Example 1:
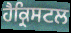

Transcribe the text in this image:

ਹੈਕ੍ਰਿਸਟਲ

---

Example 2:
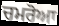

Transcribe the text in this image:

ਚਮਰੋਆ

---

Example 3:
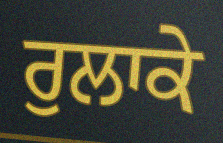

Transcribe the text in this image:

ਰੁਲਾਕੇ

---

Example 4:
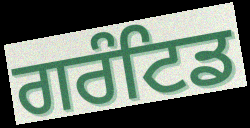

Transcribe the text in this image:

ਗਰੰਟਿਡ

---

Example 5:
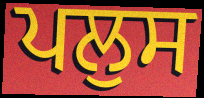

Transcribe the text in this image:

ਪਲੁਸ